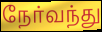
நேர்வந்து